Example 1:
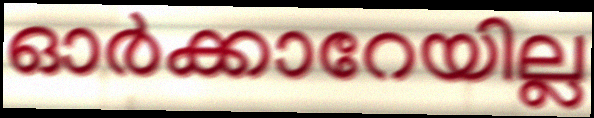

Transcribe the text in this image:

ഓർക്കാറേയില്ല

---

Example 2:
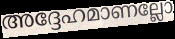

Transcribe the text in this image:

അദ്ദേഹമാണല്ലോ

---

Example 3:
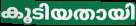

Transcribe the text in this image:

കൂടിയതായി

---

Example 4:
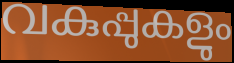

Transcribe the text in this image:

വകുപ്പുകളും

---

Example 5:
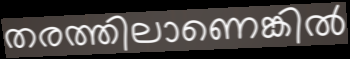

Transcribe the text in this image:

തരത്തിലാണെങ്കിൽ